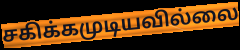
சகிக்கமுடியவில்லை